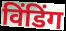
विंडिंग